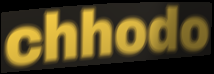
chhodo